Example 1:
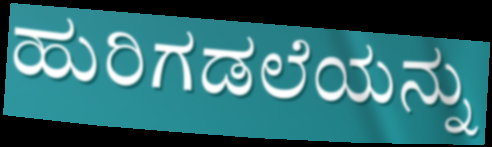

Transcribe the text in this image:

ಹುರಿಗಡಲೆಯನ್ನು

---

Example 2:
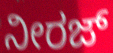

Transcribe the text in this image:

ನೀರಜ್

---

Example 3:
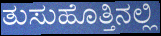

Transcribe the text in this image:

ತುಸುಹೊತ್ತಿನಲ್ಲಿ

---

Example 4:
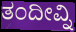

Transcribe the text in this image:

ತಂದೀವ್ನಿ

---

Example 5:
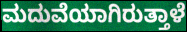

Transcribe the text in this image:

ಮದುವೆಯಾಗಿರುತ್ತಾಳೆ